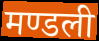
मण्डली